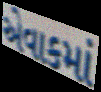
એવાકમાં